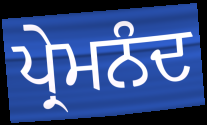
ਪ੍ਰੇਮਨੰਦ